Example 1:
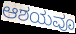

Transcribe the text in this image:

ಆಶಯವೂ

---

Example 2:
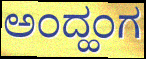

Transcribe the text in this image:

ಅಂದ್ಹಂಗ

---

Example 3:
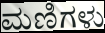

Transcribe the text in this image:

ಮಣಿಗಳು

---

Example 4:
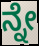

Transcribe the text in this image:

ನ್ನೇ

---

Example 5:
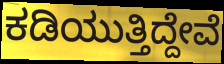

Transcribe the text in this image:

ಕಡಿಯುತ್ತಿದ್ದೇವೆ